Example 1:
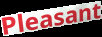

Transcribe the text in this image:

Pleasant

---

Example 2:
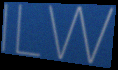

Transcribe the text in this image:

ILW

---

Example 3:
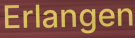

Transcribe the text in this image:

Erlangen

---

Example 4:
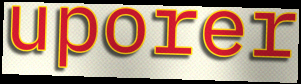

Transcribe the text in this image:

uporer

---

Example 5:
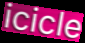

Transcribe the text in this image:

icicle